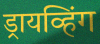
ड्रायव्हिंग